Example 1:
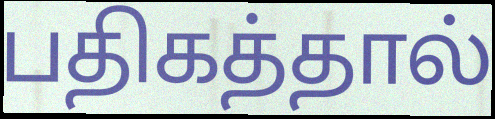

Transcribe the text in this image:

பதிகத்தால்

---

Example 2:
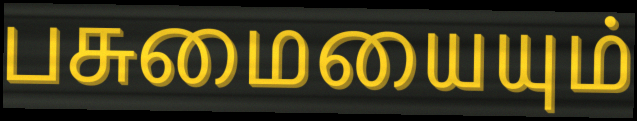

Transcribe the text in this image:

பசுமையையும்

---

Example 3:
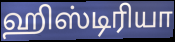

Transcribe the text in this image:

ஹிஸ்டிரியா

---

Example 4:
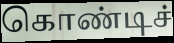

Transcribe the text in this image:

கொண்டிச்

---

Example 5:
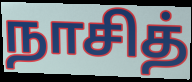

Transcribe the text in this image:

நாசித்